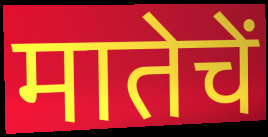
मातेचें